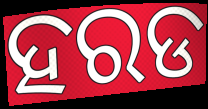
ହରଡ